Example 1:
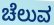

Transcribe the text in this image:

ಚೆಲುವ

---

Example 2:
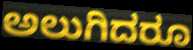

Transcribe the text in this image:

ಅಲುಗಿದರೂ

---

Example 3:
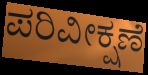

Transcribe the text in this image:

ಪರಿವೀಕ್ಷಣೆ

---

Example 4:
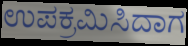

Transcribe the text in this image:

ಉಪಕ್ರಮಿಸಿದಾಗ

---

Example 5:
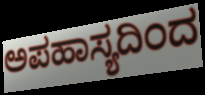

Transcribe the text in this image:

ಅಪಹಾಸ್ಯದಿಂದ